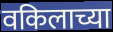
वकिलाच्या